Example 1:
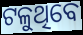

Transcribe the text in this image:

ଟଳୁଥିବେ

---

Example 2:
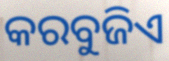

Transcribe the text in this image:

କରବୁଜିଏ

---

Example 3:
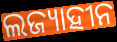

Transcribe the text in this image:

ଲଜ୍ଯାହୀନ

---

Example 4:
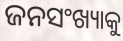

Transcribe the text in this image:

ଜନସଂଖ୍ୟାକୁ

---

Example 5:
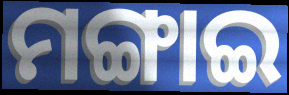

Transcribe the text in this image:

ମଙ୍ଗାଇ